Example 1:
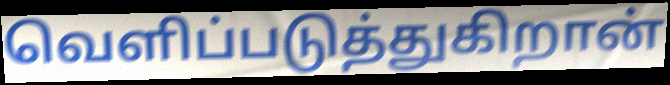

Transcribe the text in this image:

வெளிப்படுத்துகிறான்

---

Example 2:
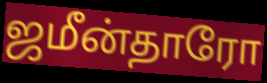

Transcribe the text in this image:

ஜமீன்தாரோ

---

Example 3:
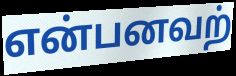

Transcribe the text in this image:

என்பனவற்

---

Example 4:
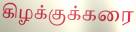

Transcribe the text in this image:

கிழக்குக்கரை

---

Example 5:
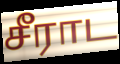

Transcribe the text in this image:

சீராட